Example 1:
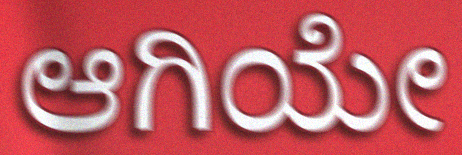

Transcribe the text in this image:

ಆಗಿಯೇ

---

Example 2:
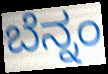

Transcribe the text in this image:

ಬೆನ್ನಂ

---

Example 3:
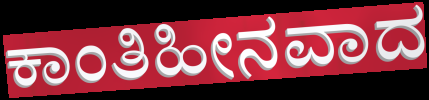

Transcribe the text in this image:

ಕಾಂತಿಹೀನವಾದ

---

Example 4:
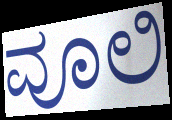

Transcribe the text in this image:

ವೂಲಿ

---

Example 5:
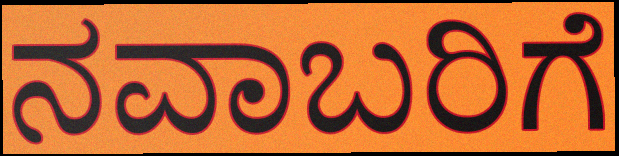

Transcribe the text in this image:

ನವಾಬರಿಗೆ